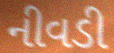
નીવડી